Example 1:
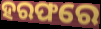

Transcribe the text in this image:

ହରଫରେ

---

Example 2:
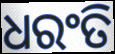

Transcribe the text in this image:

ଧରଂତି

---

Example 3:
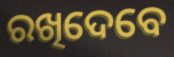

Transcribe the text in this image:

ରଖିଦେବେ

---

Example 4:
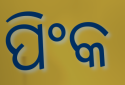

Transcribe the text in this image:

ପିଂକ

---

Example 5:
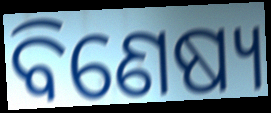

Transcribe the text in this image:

ବିଣେଷ୍ୟ